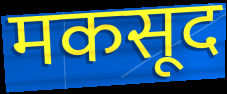
मकसूद